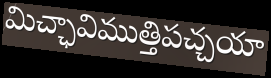
మిచ్ఛావిముత్తిపచ్చయా